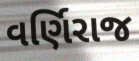
વર્ણિરાજ